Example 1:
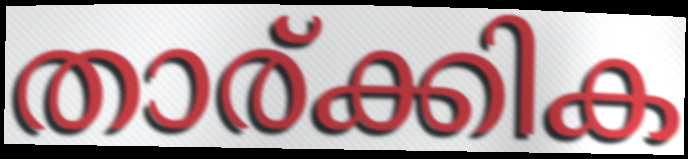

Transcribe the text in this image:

താര്ക്കിക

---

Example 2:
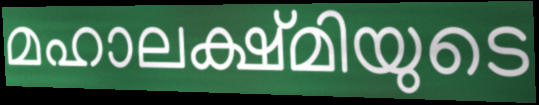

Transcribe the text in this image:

മഹാലക്ഷ്മിയുടെ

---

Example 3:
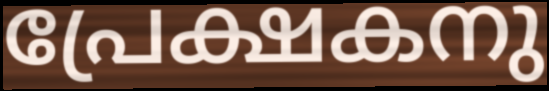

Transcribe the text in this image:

പ്രേക്ഷകനു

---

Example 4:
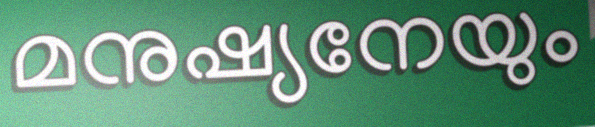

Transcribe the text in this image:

മനുഷ്യനേയും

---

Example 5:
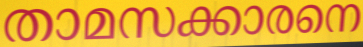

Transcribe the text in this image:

താമസക്കാരനെ